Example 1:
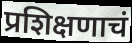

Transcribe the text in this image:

प्रशिक्षणाचं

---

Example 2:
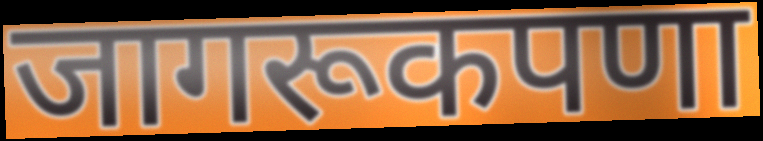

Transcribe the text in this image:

जागरूकपणा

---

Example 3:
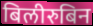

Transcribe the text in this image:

बिलीरुबिन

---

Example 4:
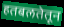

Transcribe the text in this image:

हतबलतेतून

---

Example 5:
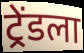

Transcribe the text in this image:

ट्रेंडला